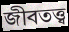
জীবতত্ত্ব